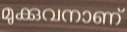
മുക്കുവനാണ്